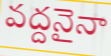
వద్దనైనా